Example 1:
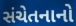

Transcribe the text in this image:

સંચેતનાનો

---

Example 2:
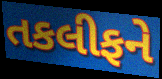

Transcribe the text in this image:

તકલીફને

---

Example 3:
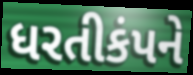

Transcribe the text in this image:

ધરતીકંપને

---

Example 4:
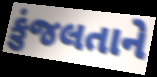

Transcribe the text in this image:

કુંજલતાને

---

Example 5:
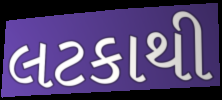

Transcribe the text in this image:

લટકાથી